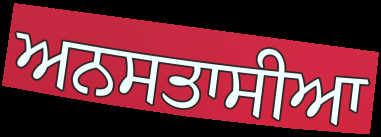
ਅਨਸਤਾਸੀਆ